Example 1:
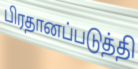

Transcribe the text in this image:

பிரதானப்படுத்தி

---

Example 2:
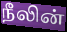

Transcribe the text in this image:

நீலின்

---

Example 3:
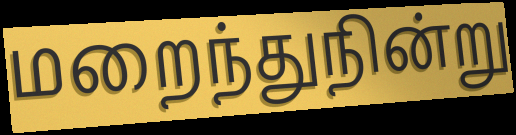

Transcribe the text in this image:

மறைந்துநின்று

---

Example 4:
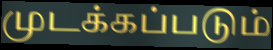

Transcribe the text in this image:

முடக்கப்படும்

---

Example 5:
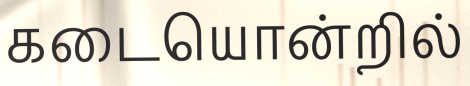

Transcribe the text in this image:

கடையொன்றில்